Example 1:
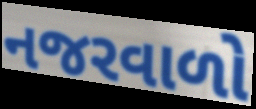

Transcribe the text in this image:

નજરવાળો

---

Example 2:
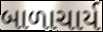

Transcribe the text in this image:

બાળાચાર્ય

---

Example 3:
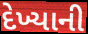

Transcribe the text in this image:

દેખ્યાની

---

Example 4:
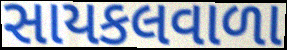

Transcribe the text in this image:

સાયકલવાળા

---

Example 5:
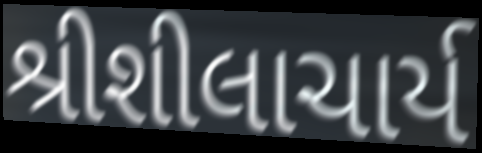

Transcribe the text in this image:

શ્રીશીલાચાર્ય